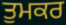
ਤੁਮਕਰ